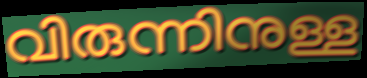
വിരുന്നിനുള്ള